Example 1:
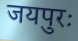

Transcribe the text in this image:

जयपुरः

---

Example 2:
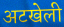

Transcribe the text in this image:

अटखेली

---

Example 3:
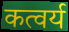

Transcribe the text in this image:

कत्वर्य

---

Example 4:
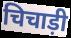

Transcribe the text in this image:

चिचाड़ी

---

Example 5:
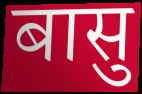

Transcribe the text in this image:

बासु